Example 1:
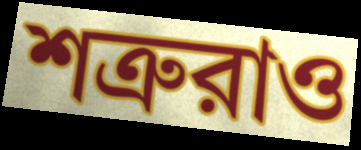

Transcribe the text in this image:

শত্রুরাও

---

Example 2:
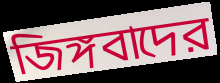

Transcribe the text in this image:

জিঙ্গবাদের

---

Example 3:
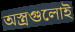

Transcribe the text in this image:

অস্ত্রগুলোই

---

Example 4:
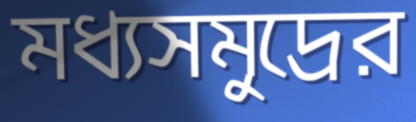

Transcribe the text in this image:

মধ্যসমুদ্রের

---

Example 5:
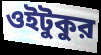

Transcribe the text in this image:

ওইটুকুর